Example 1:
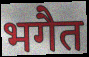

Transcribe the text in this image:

भगैत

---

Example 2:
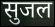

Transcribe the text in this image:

सुजल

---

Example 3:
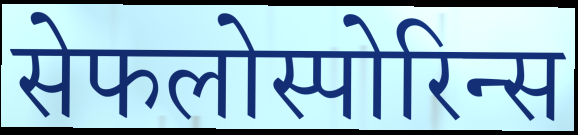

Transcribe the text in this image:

सेफलोस्पोरिन्स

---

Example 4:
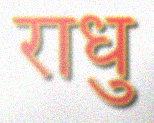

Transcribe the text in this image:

राधु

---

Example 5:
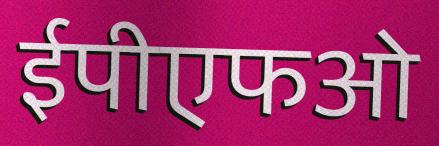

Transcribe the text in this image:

ईपीएफओ